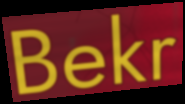
Bekr